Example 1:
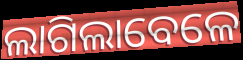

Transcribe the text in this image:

ଲାଗିଲାବେଳେ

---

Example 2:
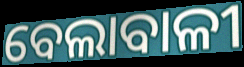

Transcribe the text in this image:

ବେଲାବାଳୀ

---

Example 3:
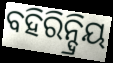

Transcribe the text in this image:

ବହିରିନ୍ଦ୍ରିୟ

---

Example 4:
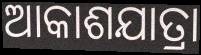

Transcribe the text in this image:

ଆକାଶଯାତ୍ରା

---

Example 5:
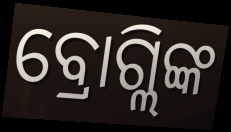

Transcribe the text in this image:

ବ୍ରୋଗ୍ଲିଙ୍କ